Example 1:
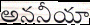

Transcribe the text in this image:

అననీయా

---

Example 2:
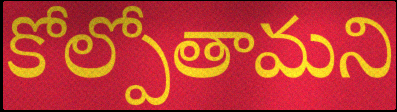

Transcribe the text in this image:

కోల్పోతామని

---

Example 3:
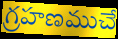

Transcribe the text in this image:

గ్రహణముచే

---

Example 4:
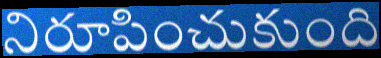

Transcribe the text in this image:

నిరూపించుకుంది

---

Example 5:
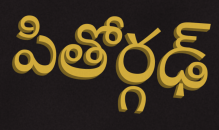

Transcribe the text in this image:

పితోర్గఢ్